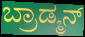
ಬ್ರಾಡ್ಮನ್